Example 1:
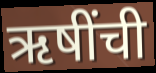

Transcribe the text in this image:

ऋषींची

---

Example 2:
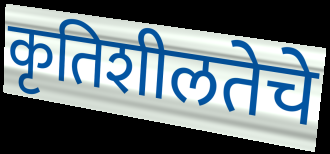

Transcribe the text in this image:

कृतिशीलतेचे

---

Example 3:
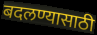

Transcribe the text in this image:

बदलण्यासाठी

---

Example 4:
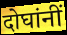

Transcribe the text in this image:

दोघांनीं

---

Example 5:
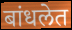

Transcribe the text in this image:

बांधलेत